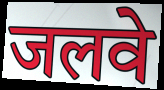
जलवे